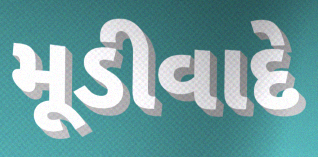
મૂડીવાદે